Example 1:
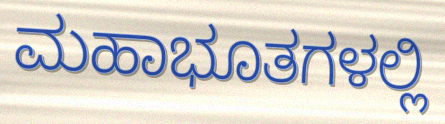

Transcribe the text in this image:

ಮಹಾಭೂತಗಳಲ್ಲಿ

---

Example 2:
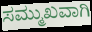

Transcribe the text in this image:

ಸಮ್ಮುಖವಾಗಿ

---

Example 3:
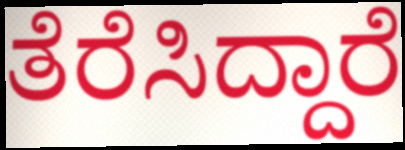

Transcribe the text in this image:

ತೆರೆಸಿದ್ದಾರೆ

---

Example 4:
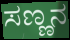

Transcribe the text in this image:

ಸಣ್ಣನ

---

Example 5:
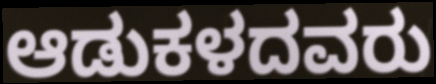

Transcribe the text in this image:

ಆಡುಕಳದವರು